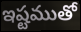
ఇష్టముతో